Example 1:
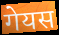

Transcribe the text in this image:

गेयस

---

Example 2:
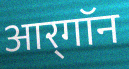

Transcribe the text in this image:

आर्‌गॉन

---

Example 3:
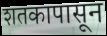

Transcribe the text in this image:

शतकापासून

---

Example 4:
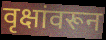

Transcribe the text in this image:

वृक्षांवरून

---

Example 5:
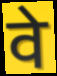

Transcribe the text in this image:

वे